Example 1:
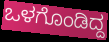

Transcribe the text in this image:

ಒಳಗೊಂಡಿದ್ದ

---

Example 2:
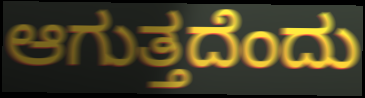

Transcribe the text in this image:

ಆಗುತ್ತದೆಂದು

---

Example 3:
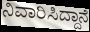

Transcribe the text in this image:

ನಿವಾರಿಸಿದ್ದಾನೆ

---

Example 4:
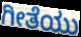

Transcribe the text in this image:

ಗೀತೆಯು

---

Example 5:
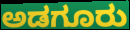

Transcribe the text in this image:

ಅಡಗೂರು